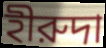
হীরুদা